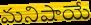
మనిషాయే